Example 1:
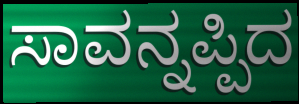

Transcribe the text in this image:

ಸಾವನ್ನಪ್ಪಿದ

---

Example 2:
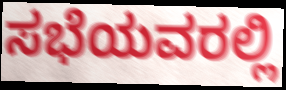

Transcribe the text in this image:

ಸಭೆಯವರಲ್ಲಿ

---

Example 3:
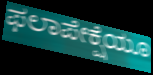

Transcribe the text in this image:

ಫಲಾಪೇಕ್ಷೆಯೂ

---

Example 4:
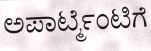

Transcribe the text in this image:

ಅಪಾರ್ಟ್ಮೆಂಟಿಗೆ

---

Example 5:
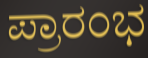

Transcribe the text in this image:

ಪ್ರಾರಂಭ